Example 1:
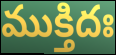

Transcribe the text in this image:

ముక్తిదః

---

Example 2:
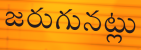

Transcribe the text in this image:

జరుగునట్లు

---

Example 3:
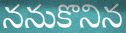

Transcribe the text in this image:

ననుకొనిన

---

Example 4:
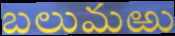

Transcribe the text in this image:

బలుమఱు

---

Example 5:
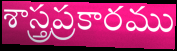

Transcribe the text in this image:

శాస్త్రప్రకారము